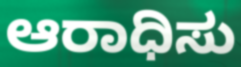
ಆರಾಧಿಸು